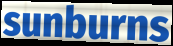
sunburns